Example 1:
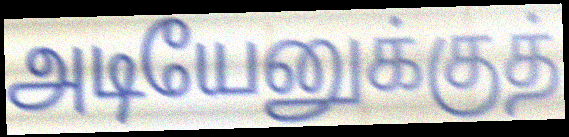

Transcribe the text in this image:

அடியேனுக்குத்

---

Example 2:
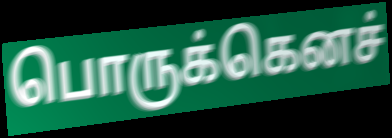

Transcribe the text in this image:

பொருக்கெனச்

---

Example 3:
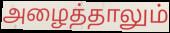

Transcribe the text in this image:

அழைத்தாலும்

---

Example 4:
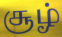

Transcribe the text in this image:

சூழ்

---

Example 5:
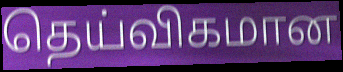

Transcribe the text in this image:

தெய்விகமான